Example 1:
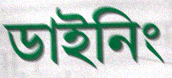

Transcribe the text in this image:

ডাইনিং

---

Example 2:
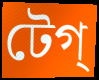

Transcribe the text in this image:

টেগ্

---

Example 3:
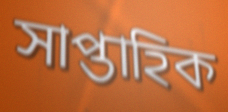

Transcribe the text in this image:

সাপ্তাহিক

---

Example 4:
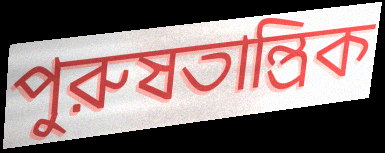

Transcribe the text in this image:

পুৰুষতান্ত্ৰিক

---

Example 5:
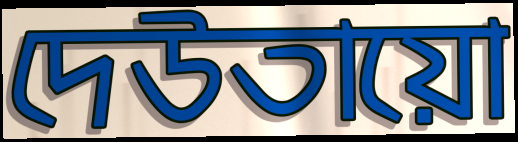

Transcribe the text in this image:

দেউতায়ো